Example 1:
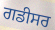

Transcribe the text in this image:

ਗਡੀਸਰ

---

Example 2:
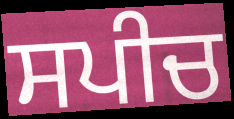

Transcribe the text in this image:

ਸਪੀਚ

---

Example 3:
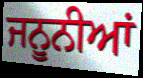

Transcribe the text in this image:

ਜਨੂਨੀਆਂ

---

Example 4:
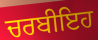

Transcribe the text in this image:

ਚਰਬੀਇਹ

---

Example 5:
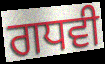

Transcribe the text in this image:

ਗਧਵੀ